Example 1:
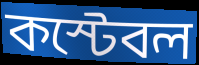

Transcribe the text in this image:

কস্টেবল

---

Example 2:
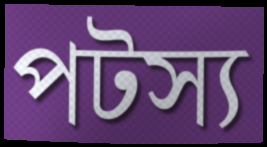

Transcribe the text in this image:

পটস্য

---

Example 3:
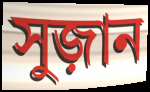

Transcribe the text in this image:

সুজ়ান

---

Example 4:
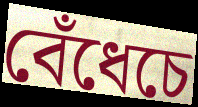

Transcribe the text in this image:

বেঁধেচে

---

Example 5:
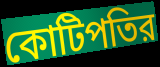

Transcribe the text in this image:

কোটিপতির